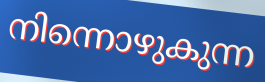
നിന്നൊഴുകുന്ന